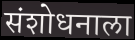
संशोधनाला